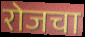
रोजचा